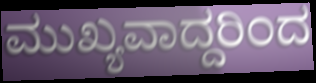
ಮುಖ್ಯವಾದ್ದರಿಂದ